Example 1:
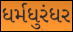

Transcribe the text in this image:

ધર્મધુરંધર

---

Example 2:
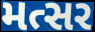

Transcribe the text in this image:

મત્સર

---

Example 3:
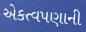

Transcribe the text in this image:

એકત્વપણાની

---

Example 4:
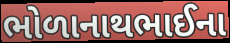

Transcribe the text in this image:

ભોળાનાથભાઈના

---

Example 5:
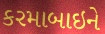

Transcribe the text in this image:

કરમાબાઇને